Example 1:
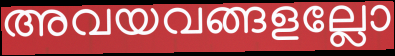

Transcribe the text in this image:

അവയവങ്ങളല്ലോ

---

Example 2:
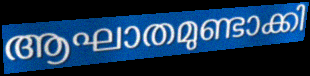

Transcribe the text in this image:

ആഘാതമുണ്ടാക്കി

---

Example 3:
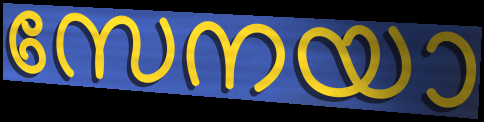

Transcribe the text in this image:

സേനയാ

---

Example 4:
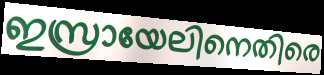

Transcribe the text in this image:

ഇസ്രായേലിനെതിരെ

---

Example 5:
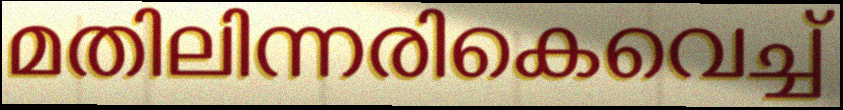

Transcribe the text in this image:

മതിലിന്നരികെവെച്ച്